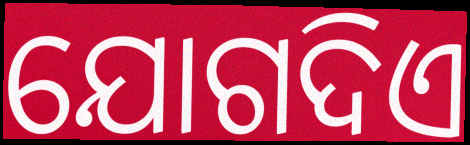
ଯୋଗଦିଏ